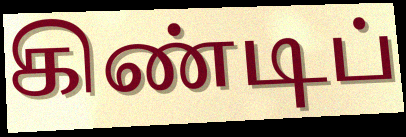
கிண்டிப்